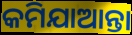
କମିଯାଆନ୍ତା